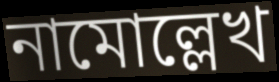
নামোল্লেখ